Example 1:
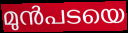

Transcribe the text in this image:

മുൻപടയെ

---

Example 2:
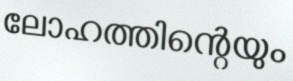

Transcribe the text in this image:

ലോഹത്തിന്റെയും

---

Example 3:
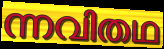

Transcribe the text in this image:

ന്നവിതഥ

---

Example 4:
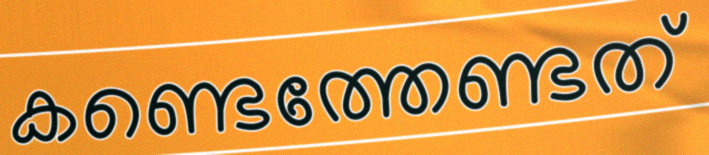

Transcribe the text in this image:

കണ്ടെത്തേണ്ടത്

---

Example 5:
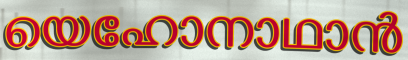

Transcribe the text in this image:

യെഹോനാഥാൻ